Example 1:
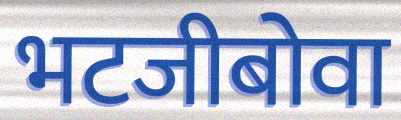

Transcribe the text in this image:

भटजीबोवा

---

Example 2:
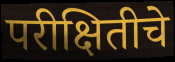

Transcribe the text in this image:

परीक्षितीचे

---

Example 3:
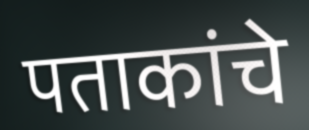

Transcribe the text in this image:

पताकांचे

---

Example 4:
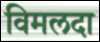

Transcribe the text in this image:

विमलदा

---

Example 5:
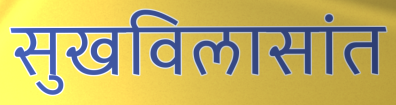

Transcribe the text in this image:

सुखविलासांत